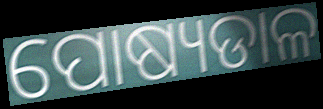
ପୋଷ୍ୟଡାଳ